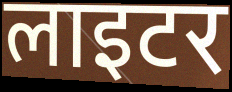
लाइटर